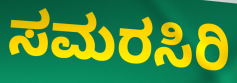
ಸಮರಸಿರಿ